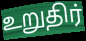
உறுதிர்